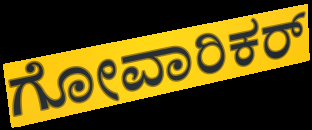
ಗೋವಾರಿಕರ್